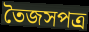
তৈজসপত্র